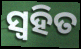
ସ୍ୱହିତ